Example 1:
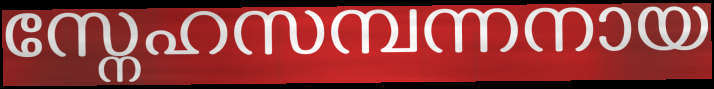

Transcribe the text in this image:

സ്നേഹസമ്പന്നനായ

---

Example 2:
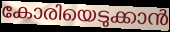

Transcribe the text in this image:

കോരിയെടുക്കാൻ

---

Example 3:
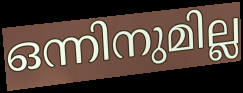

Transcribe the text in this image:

ഒന്നിനുമില്ല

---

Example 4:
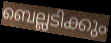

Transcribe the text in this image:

ബെല്ലടിക്കും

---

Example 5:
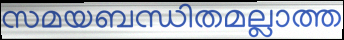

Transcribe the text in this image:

സമയബന്ധിതമല്ലാത്ത